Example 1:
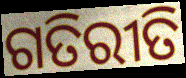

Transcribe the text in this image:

ଗତିରୀତି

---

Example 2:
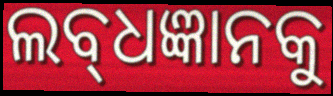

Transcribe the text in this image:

ଲବ୍‌ଧଜ୍ଞାନକୁ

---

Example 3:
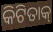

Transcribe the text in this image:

କିଟିତାକ୍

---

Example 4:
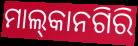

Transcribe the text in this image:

ମାଲ୍‌କାନଗିରି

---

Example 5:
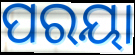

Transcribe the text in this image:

ପରୟା